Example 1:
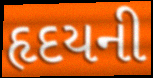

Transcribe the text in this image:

હૃદયની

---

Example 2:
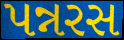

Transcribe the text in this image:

પન્નરસ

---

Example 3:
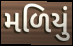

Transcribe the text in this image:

મળિયું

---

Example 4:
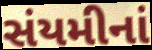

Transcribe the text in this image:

સંયમીનાં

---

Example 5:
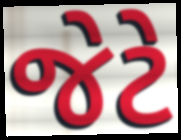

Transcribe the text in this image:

જેટે